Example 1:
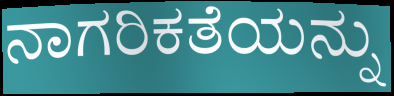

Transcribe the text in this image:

ನಾಗರಿಕತೆಯನ್ನು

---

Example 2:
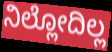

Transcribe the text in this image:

ನಿಲ್ಲೋದಿಲ್ಲ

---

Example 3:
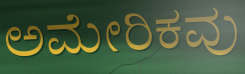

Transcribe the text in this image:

ಅಮೇರಿಕವು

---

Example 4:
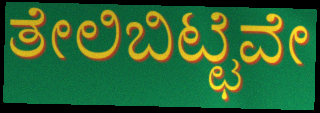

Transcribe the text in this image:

ತೇಲಿಬಿಟ್ಟೆವೇ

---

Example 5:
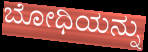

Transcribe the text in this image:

ಬೋಧಿಯನ್ನು